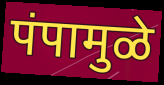
पंपामुळे